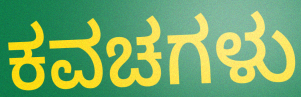
ಕವಚಗಳು